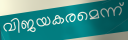
വിജയകരമെന്ന്